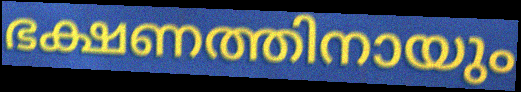
ഭക്ഷണത്തിനായും